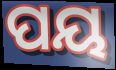
ପୟ